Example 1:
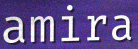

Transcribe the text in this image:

amira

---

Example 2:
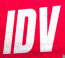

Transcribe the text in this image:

IDV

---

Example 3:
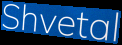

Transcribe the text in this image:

Shvetal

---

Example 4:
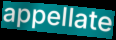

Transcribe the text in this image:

appellate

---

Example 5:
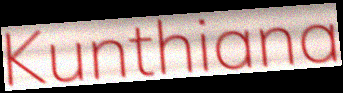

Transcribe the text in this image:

Kunthiana